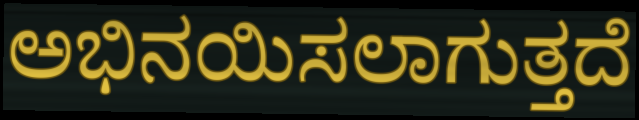
ಅಭಿನಯಿಸಲಾಗುತ್ತದೆ